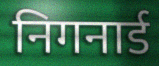
निगनार्ड